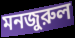
মনজুরুল